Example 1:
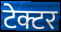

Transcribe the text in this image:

टेक्टर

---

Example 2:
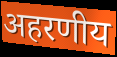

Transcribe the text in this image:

अहरणीय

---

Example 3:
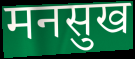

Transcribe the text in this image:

मनसुख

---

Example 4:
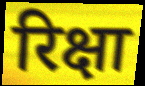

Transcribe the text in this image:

रिक्षा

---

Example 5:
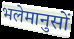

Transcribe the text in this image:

भलेमानुसों